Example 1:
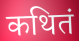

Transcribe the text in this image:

कथितं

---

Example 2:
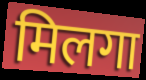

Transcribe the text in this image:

मिलगा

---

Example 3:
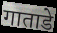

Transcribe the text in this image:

गाताडे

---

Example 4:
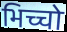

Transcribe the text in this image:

भिच्चो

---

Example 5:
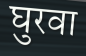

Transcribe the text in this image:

घुरवा